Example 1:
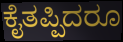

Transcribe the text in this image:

ಕೈತಪ್ಪಿದರೂ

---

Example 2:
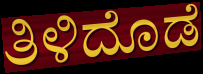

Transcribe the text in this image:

ತಿಳಿದೊಡೆ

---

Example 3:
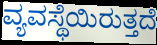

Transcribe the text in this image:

ವ್ಯವಸ್ಥೆಯಿರುತ್ತದೆ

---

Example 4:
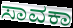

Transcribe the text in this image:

ಸಾವಕಾ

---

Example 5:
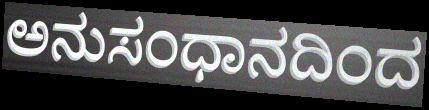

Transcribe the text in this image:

ಅನುಸಂಧಾನದಿಂದ